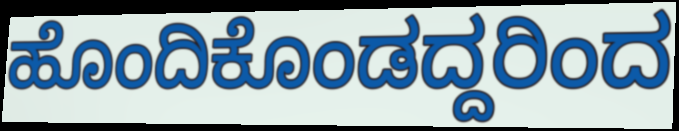
ಹೊಂದಿಕೊಂಡದ್ದರಿಂದ